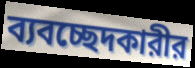
ব্যবচ্ছেদকারীর